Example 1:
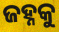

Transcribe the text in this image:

ଜହ୍ନକୁ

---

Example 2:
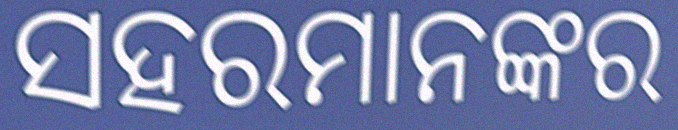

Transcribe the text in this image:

ସହରମାନଙ୍କର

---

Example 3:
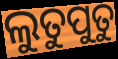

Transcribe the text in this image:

ଲୁତୁପୁତୁ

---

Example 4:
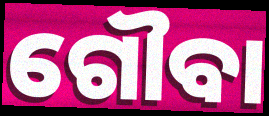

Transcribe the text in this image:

ଗୌବା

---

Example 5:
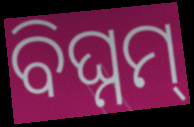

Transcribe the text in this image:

ବିଘ୍ନମ୍